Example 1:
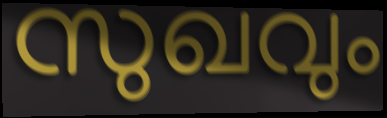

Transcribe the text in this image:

സുഖവും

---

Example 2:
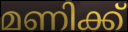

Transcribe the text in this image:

മണിക്ക്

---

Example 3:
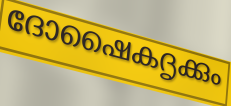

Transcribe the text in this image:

ദോഷൈകദൃക്കും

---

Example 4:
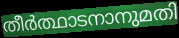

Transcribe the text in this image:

തീർത്ഥാടനാനുമതി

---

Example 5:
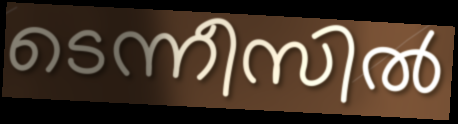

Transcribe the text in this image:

ടെന്നീസിൽ